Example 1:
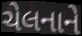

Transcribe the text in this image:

ચેલનાને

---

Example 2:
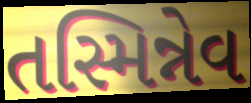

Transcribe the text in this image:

તસ્મિન્નેવ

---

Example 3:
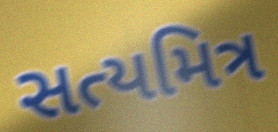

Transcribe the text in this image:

સત્યમિત્ર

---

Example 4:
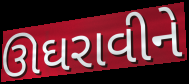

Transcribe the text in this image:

ઊઘરાવીને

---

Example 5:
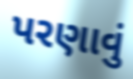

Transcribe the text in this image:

પરણાવું